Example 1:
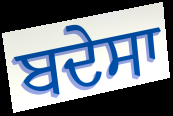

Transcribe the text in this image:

ਬਦੇਸਾ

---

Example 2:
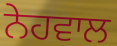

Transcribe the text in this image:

ਨੇਹਵਾਲ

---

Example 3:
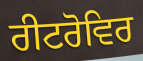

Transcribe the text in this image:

ਰੀਟਰੋਵਿਰ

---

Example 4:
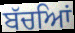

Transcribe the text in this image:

ਬੱਚਆਿਂ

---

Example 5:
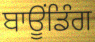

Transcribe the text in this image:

ਬਾਊਂਡਿੰਗ